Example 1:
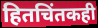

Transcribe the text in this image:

हितचिंतकही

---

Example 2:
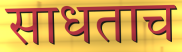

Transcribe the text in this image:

साधताच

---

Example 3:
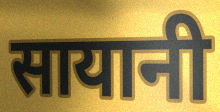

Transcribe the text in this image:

सायानी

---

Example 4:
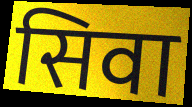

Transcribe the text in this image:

सिवा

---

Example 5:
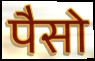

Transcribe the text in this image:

पैसो